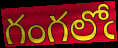
గంగలోఁ